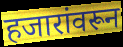
हजारांवरून